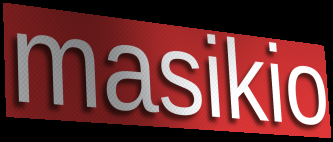
masikio